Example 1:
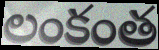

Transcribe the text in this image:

లంకంత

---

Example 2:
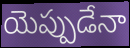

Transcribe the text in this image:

యెప్పుడేనా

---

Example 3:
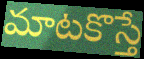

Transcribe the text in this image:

మాటకొస్తే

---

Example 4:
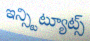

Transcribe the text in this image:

ఇన్స్టిట్యూట్స్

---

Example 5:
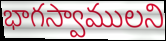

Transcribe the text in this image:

భాగస్వాములని